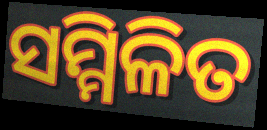
ସମ୍ମିଳିତ